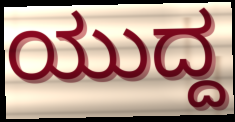
ಯುದ್ದ